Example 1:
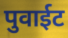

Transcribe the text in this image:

पुवाईट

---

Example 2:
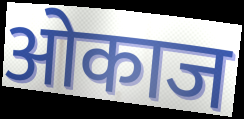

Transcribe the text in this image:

ओकाज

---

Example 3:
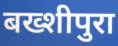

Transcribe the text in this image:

बख्शीपुरा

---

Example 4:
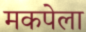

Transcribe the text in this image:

मकपेला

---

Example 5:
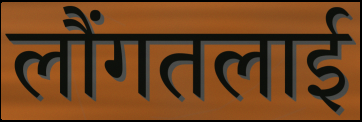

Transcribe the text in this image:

लौंगतलाई